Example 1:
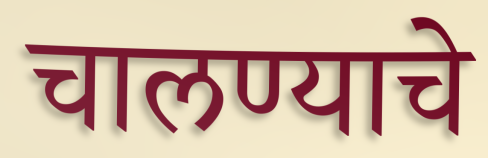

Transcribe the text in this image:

चालण्याचे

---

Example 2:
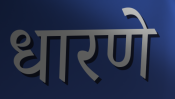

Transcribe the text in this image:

धारणे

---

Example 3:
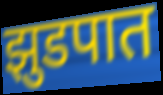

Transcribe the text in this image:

झुडपात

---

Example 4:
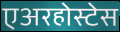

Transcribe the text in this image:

एअरहोस्टेस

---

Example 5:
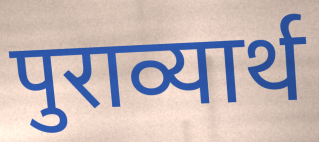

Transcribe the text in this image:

पुराव्यार्थ